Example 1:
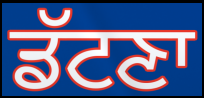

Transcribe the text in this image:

ਡੱਟਣਾ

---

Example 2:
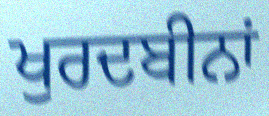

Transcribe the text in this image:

ਖੁਰਦਬੀਨਾਂ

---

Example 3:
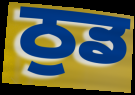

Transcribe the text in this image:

ਠੁਡ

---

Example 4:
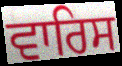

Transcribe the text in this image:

ਵਾਰਿਸ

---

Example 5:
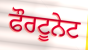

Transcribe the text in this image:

ਫੌਰਟੂਨੇਟ